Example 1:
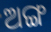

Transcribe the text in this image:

ଅଙ୍ଗ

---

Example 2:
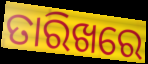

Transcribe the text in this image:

ତାରିଖରେ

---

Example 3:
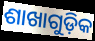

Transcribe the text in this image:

ଶାଖାଗୁଡ଼ିକ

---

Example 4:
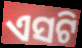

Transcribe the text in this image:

ଏସଟି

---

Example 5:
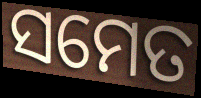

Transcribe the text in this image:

ସମେତ